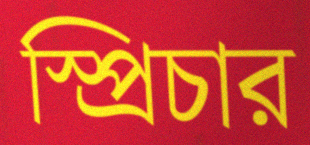
স্প্রিচার